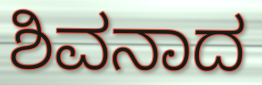
ಶಿವನಾದ